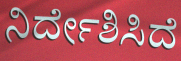
ನಿರ್ದೇಶಿಸಿದೆ